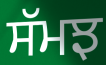
ਸੱਮਝ